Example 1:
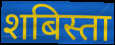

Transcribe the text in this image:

शबिस्ता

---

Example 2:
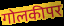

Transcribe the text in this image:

गोलकीपर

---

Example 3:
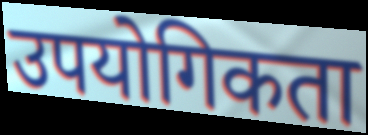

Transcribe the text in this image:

उपयोगिकता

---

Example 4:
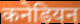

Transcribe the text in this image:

कनेडियन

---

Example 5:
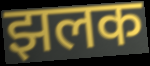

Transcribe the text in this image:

झलक